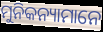
ମୁନିକନ୍ୟାମାନେ